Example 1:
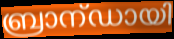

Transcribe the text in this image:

ബ്രാന്ഡായി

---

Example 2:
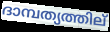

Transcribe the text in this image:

ദാമ്പത്യത്തില്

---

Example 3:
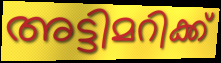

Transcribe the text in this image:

അട്ടിമറിക്ക്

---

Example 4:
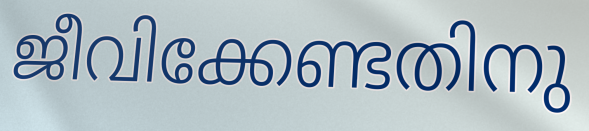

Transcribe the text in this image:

ജീവിക്കേണ്ടതിനു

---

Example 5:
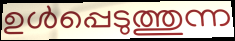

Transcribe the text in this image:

ഉൾപ്പെടുത്തുന്ന